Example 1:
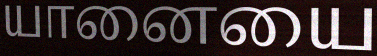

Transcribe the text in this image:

யானையை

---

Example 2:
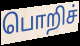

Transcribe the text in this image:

பொறிச்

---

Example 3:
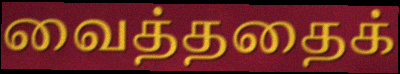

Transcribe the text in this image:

வைத்ததைக்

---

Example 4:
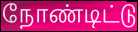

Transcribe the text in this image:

நோண்டிட்டு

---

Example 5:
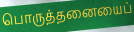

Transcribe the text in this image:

பொருத்தனையைப்